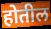
होतील